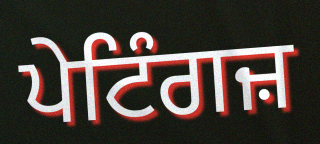
ਪੇਟਿੰਗਜ਼